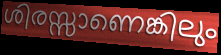
ശിരസ്സാണെങ്കിലും